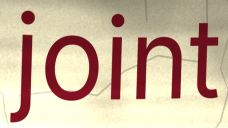
joint